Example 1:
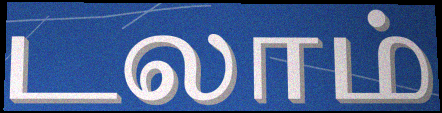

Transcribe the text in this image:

டலாம்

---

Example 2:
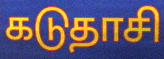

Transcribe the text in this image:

கடுதாசி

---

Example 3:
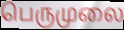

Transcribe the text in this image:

பெருமுலை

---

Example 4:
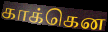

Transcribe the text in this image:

காக்கென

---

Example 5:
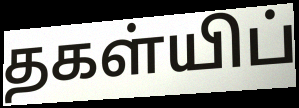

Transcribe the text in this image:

தகள்யிப்